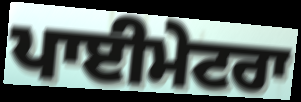
ਪਾਈਮੇਟਰਾ